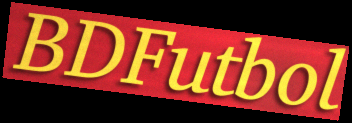
BDFutbol